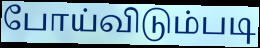
போய்விடும்படி